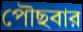
পৌছবার